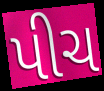
પીચ